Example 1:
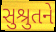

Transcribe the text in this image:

સુશ્રુતને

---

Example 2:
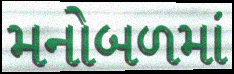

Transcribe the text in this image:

મનોબળમાં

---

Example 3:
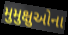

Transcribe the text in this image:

મુમુક્ષુઓના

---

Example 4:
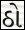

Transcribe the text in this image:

ઠો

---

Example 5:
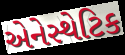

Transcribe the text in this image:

એનેસ્થેટિક